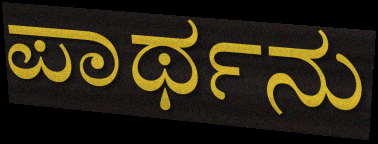
ಪಾರ್ಥನು